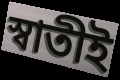
স্বাতীই